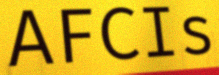
AFCIs